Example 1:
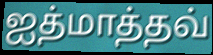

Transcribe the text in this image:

ஐத்மாத்தவ்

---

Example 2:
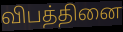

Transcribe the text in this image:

விபத்தினை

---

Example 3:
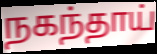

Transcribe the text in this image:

நகந்தாய்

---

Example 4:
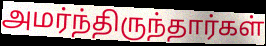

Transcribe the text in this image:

அமர்ந்திருந்தார்கள்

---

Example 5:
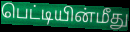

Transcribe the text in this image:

பெட்டியின்மீது